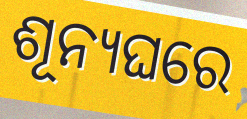
ଶୂନ୍ୟଘରେ